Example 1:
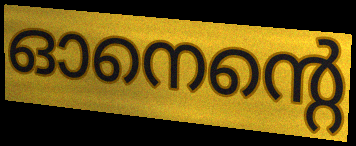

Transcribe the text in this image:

ഓനെന്റെ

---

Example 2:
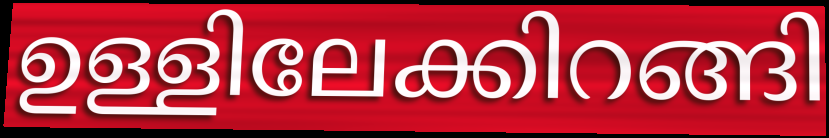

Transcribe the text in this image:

ഉള്ളിലേക്കിറങ്ങി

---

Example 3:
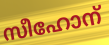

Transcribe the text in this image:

സീഹോന്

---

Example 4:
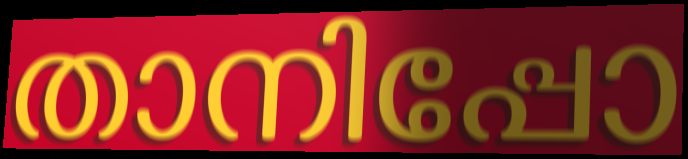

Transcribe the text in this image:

താനിപ്പോ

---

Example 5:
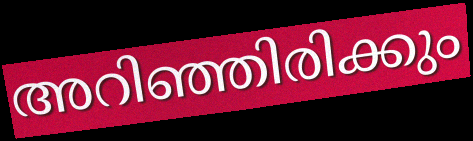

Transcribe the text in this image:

അറിഞ്ഞിരിക്കും